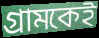
গ্রামকেই